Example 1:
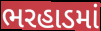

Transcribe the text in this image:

ભરહાડમાં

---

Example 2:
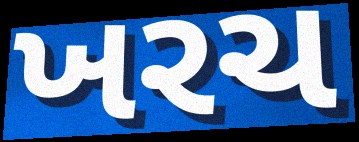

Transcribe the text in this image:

ખરચ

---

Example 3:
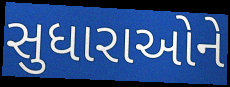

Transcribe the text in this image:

સુધારાઓને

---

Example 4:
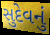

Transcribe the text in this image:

સુદેવનું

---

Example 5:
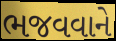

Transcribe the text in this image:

ભજવવાને